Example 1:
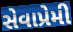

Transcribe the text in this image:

સેવાપ્રેમી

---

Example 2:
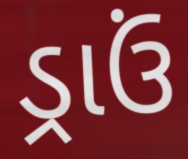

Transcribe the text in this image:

ડ્રાઉં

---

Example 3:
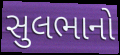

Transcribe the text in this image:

સુલભાનો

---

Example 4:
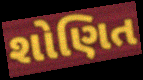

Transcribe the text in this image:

શોણિત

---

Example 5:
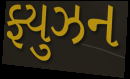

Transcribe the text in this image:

ફ્યુઝન